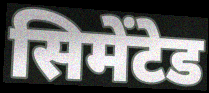
सिमेंटेड